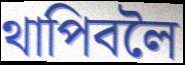
থাপিবলৈ